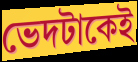
ভেদটাকেই